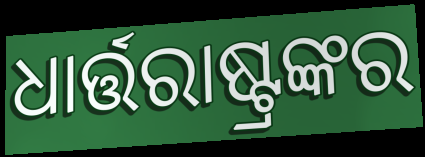
ଧାର୍ତ୍ତରାଷ୍ଟ୍ରଙ୍କର